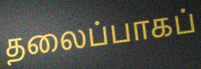
தலைப்பாகப்